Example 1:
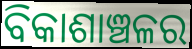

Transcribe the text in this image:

ବିକାଶାଞ୍ଚଳର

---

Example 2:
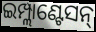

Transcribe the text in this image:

ଇମ୍ପ୍ଲାଣ୍ଟେସନ୍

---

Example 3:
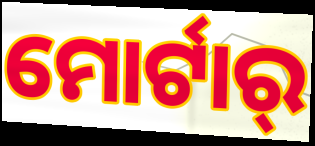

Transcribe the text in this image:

ମୋର୍ଟାର୍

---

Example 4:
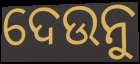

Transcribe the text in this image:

ଦେଉନୁ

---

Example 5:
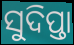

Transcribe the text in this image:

ସୁଦିପ୍ତା